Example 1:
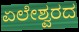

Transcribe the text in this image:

ಏಲೇಶ್ವರದ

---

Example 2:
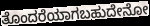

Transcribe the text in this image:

ತೊಂದರೆಯಾಗಬಹುದೇನೋ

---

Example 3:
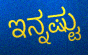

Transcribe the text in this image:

ಇನ್ನಷ್ಟು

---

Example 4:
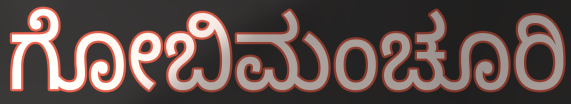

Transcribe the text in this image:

ಗೋಬಿಮಂಚೂರಿ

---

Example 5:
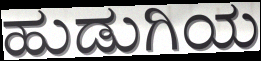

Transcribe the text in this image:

ಹುಡುಗಿಯ